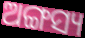
ଅଙ୍ଗସ୍ୟ